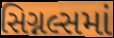
સિગ્નલ્સમાં